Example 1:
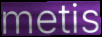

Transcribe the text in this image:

metis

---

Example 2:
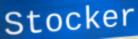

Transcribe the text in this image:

Stocker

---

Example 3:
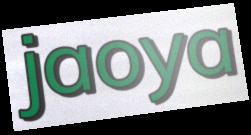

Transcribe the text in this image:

jaoya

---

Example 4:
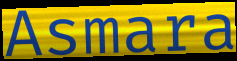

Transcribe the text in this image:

Asmara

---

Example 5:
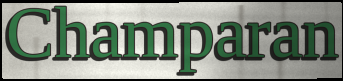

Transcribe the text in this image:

Champaran